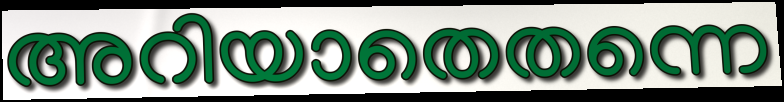
അറിയാതെതന്നെ